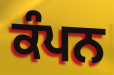
ਕੰਪਨ